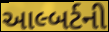
આલ્બર્ટની